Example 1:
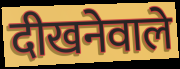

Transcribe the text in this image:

दीखनेवाले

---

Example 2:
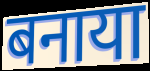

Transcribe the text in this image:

बनाया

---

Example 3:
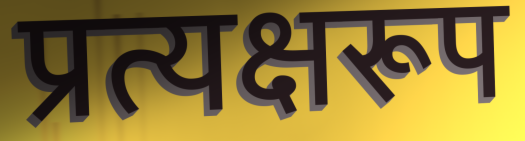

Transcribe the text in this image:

प्रत्यक्षरूप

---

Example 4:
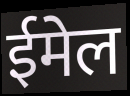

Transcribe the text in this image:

ईमेल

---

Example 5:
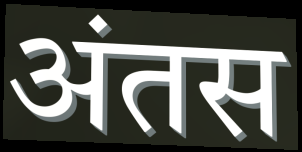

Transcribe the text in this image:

अंतस